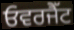
ਓਵਰਜੈੱਟ